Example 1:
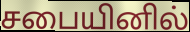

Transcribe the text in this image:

சபையினில்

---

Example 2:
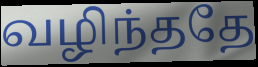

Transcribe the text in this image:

வழிந்ததே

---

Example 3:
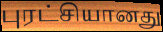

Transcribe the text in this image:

புரட்சியானது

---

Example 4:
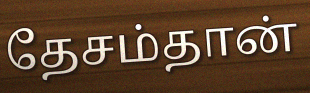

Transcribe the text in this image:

தேசம்தான்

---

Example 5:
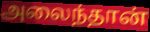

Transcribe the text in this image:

அலைந்தான்